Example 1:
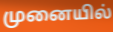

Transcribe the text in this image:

முனையில்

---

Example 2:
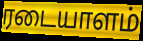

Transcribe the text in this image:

ரடையாளம்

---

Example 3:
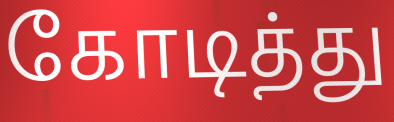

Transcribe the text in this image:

கோடித்து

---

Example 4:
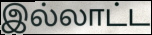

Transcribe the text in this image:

இல்லாட்ட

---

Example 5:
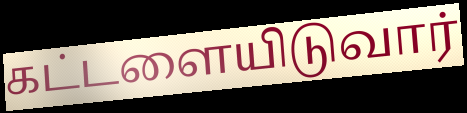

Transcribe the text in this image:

கட்டளையிடுவார்